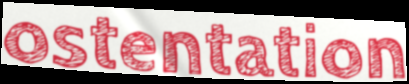
ostentation